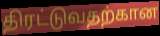
திரட்டுவதற்கான